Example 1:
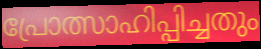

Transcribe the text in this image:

പ്രോത്സാഹിപ്പിച്ചതും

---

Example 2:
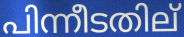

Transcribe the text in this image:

പിന്നീടതില്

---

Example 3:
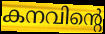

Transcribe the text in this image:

കനവിന്റെ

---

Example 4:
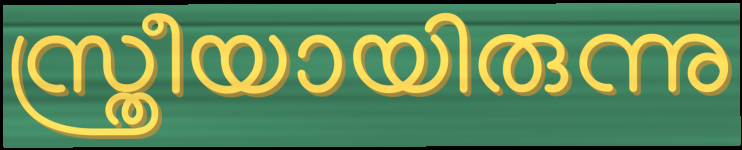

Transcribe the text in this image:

സ്ത്രീയായിരുന്നു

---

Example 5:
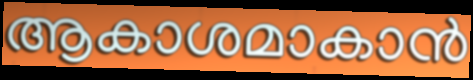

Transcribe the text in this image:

ആകാശമാകാൻ